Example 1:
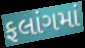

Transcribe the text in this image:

ફલાંગમાં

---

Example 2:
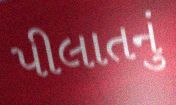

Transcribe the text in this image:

પીલાતનું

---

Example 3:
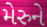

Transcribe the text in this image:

મેરુને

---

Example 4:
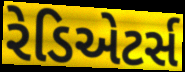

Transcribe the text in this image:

રેડિએટર્સ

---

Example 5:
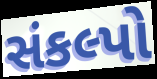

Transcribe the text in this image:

સંકલ્પો